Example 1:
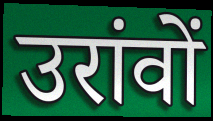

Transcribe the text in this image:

उरांवों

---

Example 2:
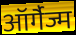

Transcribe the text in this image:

ऑर्गैज्म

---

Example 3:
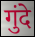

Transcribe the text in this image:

गुंदे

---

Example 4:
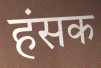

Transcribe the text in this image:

हंसक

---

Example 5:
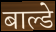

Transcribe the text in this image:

बाल्डे